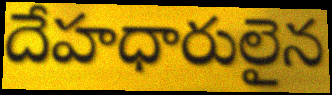
దేహధారులైన